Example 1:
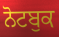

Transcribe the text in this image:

ਨੋਟਬੁਕ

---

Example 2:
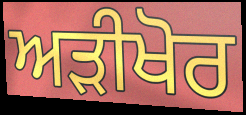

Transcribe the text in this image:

ਅੜੀਖੋਰ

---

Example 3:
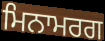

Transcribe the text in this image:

ਮਿਨਾਮਰਗ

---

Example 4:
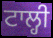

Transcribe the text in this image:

ਟਾਲ੍ਹੀ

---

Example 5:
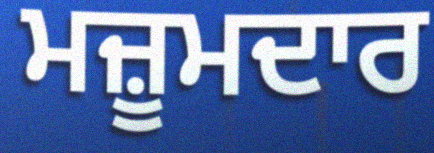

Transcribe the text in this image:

ਮਜ਼ੂਮਦਾਰ